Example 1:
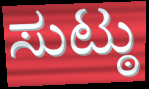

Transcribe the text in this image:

ಸುಟ್ಠು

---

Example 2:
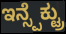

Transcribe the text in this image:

ಇನ್ಸ್ಪೆಕ್ಟ್ರು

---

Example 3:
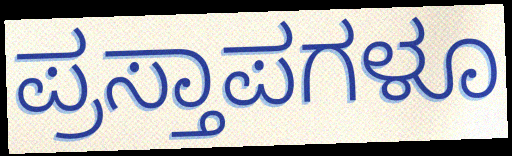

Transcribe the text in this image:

ಪ್ರಸ್ತಾಪಗಳೂ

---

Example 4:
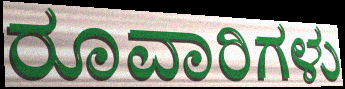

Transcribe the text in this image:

ರೂವಾರಿಗಳು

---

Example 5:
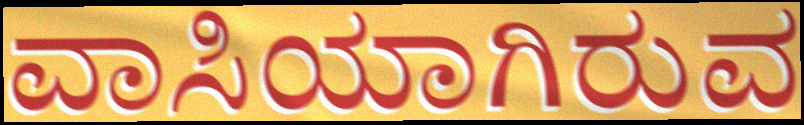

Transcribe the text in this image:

ವಾಸಿಯಾಗಿರುವ